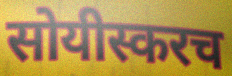
सोयीस्करच